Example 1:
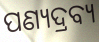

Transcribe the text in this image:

ପଣ୍ୟଦ୍ରବ୍ୟ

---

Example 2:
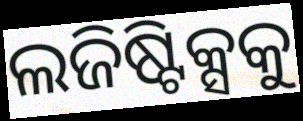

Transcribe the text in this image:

ଲଜିଷ୍ଟିକ୍ସକୁ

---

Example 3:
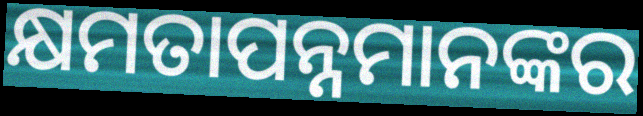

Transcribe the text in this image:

କ୍ଷମତାପନ୍ନମାନଙ୍କର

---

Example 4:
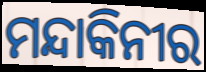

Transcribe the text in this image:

ମନ୍ଦାକିନୀର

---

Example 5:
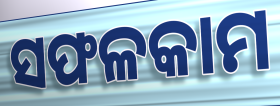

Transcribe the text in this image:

ସଫଳକାମ